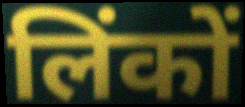
लिंकों